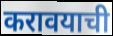
करावयाची